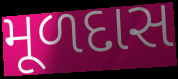
મૂળદાસ